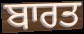
ਬਾਰਤ